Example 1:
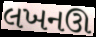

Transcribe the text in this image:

લખનઊ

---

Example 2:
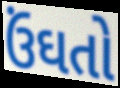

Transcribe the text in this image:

ઉંઘતો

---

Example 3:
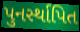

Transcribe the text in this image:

પુનર્સ્થાપિત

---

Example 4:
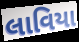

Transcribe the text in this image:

લાવિયા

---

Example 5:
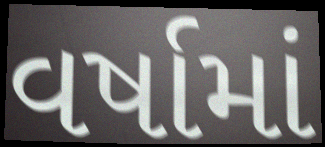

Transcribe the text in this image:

વર્ષામાં